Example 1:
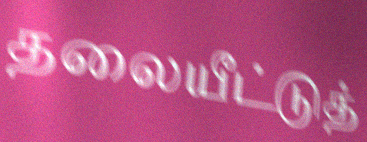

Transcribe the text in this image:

தலையீட்டுத்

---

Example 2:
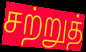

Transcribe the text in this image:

சற்றுத்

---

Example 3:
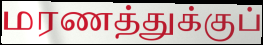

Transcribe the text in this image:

மரணத்துக்குப்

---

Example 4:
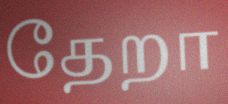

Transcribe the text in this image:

தேறா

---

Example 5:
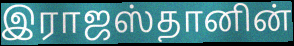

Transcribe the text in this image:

இராஜஸ்தானின்